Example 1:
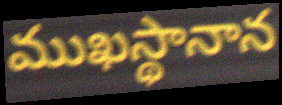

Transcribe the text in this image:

ముఖస్థానాన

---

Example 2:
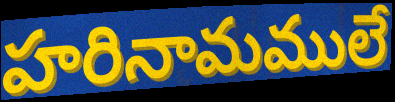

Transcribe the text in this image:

హరినామములే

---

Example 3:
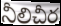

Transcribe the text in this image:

నీలిచీర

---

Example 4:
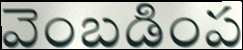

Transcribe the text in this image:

వెంబడింప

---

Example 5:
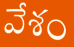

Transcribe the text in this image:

వేశం